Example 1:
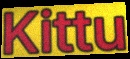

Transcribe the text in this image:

Kittu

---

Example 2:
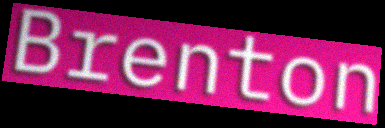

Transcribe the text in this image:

Brenton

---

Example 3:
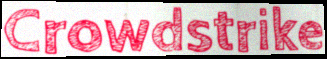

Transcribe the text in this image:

Crowdstrike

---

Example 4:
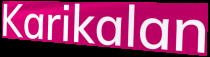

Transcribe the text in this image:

Karikalan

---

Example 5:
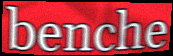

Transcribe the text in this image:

benche